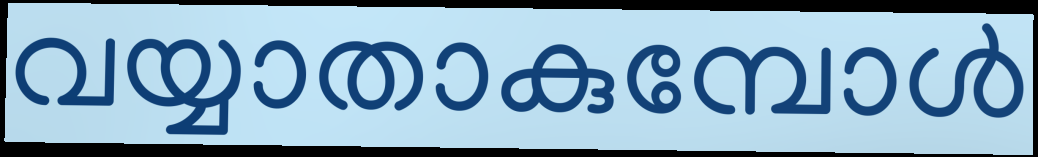
വയ്യാതാകുമ്പോൾ